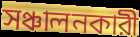
সঞ্চালনকারী